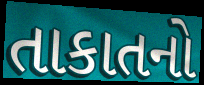
તાકાતનો